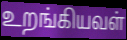
உறங்கியவள்